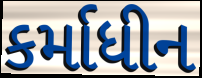
કર્માધીન